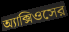
অ্যাক্সিওসের